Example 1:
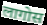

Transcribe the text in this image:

लागोस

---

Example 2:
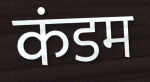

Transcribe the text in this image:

कंडम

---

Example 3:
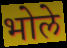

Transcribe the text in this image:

भोले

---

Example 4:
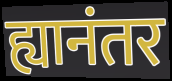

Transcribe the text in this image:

ह्यानंतर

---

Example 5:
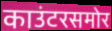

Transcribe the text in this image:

काउंटरसमोर